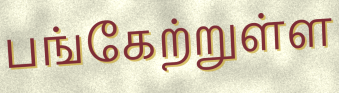
பங்கேற்றுள்ள